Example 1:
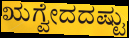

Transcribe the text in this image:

ಋಗ್ವೇದದಷ್ಟು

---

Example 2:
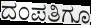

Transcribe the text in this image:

ದಂಪತಿಗೂ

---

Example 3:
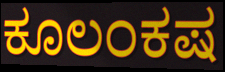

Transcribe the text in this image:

ಕೂಲಂಕಷ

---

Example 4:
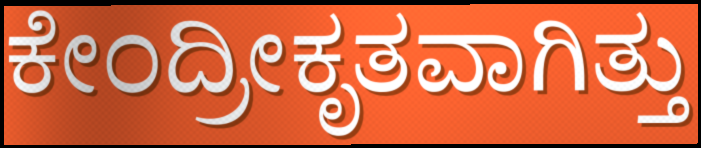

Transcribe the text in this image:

ಕೇಂದ್ರೀಕೃತವಾಗಿತ್ತು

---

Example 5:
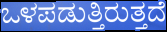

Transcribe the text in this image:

ಒಳಪಡುತ್ತಿರುತ್ತದೆ